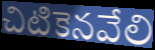
చిటికెనవేలి